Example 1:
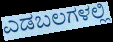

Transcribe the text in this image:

ಎಡಬಲಗಳಲ್ಲಿ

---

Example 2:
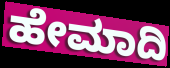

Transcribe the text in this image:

ಹೇಮಾದಿ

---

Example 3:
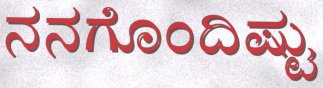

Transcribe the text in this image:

ನನಗೊಂದಿಷ್ಟು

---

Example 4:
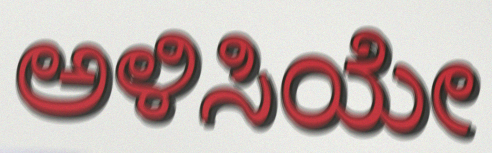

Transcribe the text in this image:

ಅಳಿಸಿಯೇ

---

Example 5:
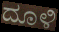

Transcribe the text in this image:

ದೂಳಿ